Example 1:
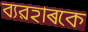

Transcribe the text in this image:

ব্যৱহাৰকে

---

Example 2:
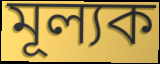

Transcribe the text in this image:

মূল্যক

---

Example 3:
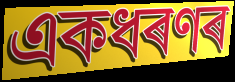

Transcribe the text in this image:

একধৰণৰ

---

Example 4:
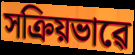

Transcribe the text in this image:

সক্ৰিয়ভাৱে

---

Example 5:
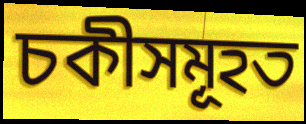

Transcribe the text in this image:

চকীসমূহত